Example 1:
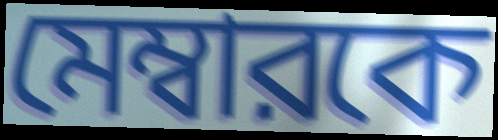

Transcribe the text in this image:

মেম্বারকে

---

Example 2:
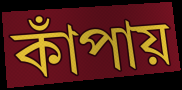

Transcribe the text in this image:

কাঁপায়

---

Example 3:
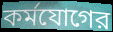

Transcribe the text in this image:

কর্মযোগের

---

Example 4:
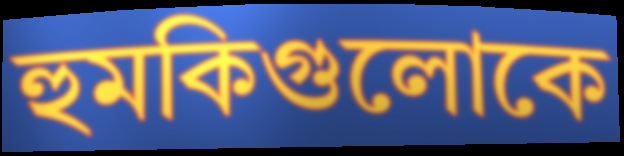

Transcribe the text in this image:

হুমকিগুলোকে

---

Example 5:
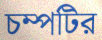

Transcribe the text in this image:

চম্পটির